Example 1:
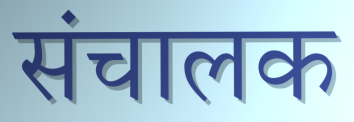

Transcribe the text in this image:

संचालक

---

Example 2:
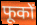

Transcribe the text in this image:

फूकों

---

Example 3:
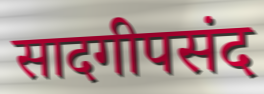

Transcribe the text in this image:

सादगीपसंद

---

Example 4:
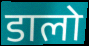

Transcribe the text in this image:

डालो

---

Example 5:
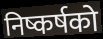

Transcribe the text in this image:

निष्कर्षको